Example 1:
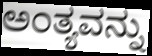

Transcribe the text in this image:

ಅಂತ್ಯವನ್ನು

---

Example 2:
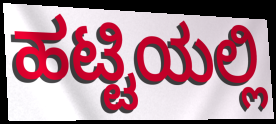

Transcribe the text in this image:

ಹಟ್ಟಿಯಲ್ಲಿ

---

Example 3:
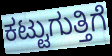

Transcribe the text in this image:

ಕಟ್ಟುಗುತ್ತಿಗೆ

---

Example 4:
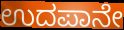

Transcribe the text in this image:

ಉದಪಾನೇ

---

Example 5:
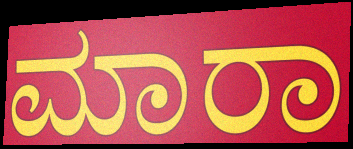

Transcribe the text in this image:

ಮಾರಾ